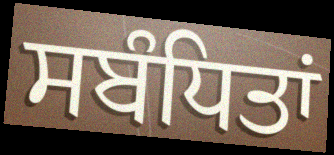
ਸਬੰਧਿਤਾਂ